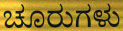
ಚೂರುಗಳು